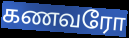
கணவரோ